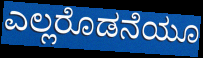
ಎಲ್ಲರೊಡನೆಯೂ